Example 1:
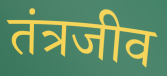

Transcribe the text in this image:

तंत्रजीव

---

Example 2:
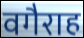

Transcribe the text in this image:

वगैराह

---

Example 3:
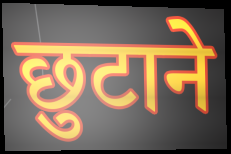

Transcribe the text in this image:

छुटाने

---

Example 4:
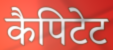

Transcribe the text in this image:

कैपिटेट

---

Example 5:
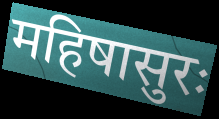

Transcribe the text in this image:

महिषासुरः